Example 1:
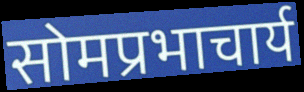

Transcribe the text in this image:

सोमप्रभाचार्य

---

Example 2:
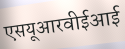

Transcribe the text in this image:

एसयूआरवीईआई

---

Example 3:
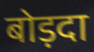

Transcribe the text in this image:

बोड़दा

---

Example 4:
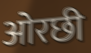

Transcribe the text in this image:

ओरछी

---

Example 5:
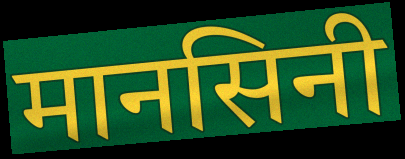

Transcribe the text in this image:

मानसिनी